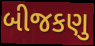
બીજકણુ